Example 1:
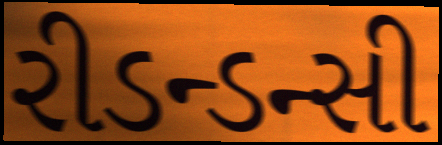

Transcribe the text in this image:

રીડન્ડન્સી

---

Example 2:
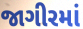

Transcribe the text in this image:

જાગીરમાં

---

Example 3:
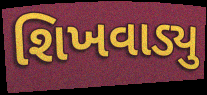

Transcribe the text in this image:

શિખવાડ્યુ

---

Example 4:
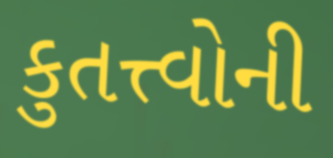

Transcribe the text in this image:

કુતત્ત્વોની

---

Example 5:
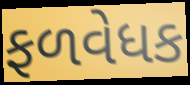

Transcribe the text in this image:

ફળવેધક